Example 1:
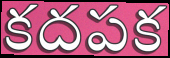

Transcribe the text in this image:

కదపక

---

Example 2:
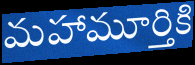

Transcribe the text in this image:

మహామూర్తికి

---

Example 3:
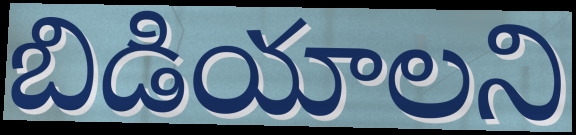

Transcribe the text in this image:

బిడియాలని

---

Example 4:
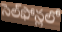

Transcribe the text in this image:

సెల్‌ఫోన్లలో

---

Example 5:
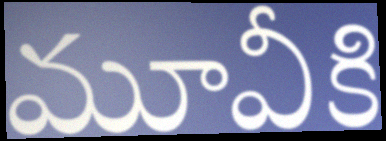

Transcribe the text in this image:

మూవీకి